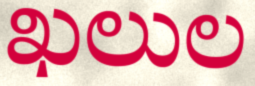
ఖలుల